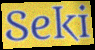
Seki